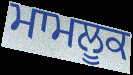
ਮਾਮਲੂਕ